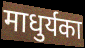
माधुर्यका